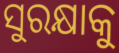
ସୁରକ୍ଷାକୁ